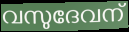
വസുദേവന്